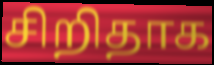
சிறிதாக